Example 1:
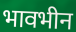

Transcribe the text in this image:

भावभीन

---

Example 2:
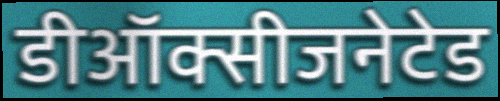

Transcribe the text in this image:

डीऑक्सीजनेटेड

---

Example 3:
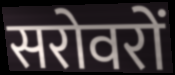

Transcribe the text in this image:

सरोवरों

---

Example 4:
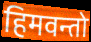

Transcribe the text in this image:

हिमवन्तो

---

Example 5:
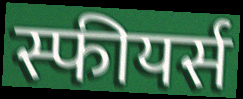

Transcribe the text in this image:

स्फीयर्स